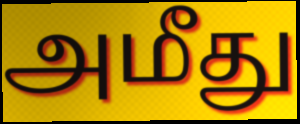
அமீது